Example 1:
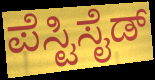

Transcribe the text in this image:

ಪೆಸ್ಟಿಸೈಡ್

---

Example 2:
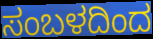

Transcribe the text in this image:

ಸಂಬಳದಿಂದ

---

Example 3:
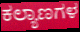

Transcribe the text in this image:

ಕಲ್ಯಾಣಗಳ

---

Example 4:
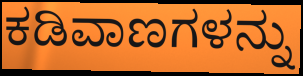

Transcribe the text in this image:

ಕಡಿವಾಣಗಳನ್ನು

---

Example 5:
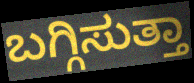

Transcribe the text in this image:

ಬಗ್ಗಿಸುತ್ತಾ